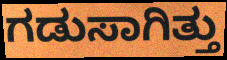
ಗಡುಸಾಗಿತ್ತು